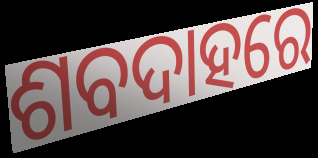
ଶବଦାହରେ